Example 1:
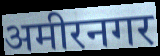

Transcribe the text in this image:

अमीरनगर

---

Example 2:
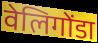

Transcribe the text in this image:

वेलिगोंडा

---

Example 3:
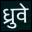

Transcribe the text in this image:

ध्रुवे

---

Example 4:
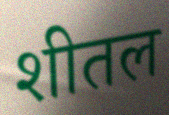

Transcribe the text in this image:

शीतल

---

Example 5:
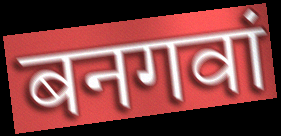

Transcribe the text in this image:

बनगवां